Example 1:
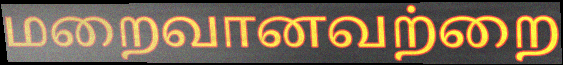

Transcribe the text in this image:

மறைவானவற்றை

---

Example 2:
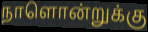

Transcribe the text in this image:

நாளொன்றுக்கு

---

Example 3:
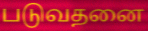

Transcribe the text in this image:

படுவதனை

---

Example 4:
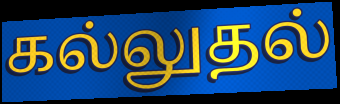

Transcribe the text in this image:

கல்லுதல்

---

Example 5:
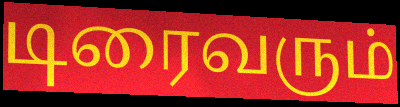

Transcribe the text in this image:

டிரைவரும்